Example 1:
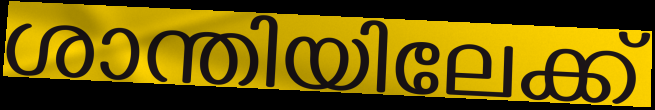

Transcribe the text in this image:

ശാന്തിയിലേക്ക്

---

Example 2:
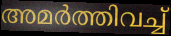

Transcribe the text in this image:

അമർത്തിവച്ച്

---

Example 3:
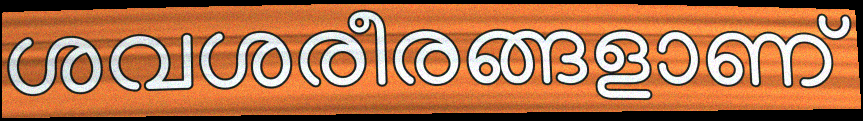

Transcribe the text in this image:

ശവശരീരങ്ങളാണ്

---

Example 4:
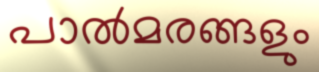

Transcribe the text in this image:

പാൽമരങ്ങളും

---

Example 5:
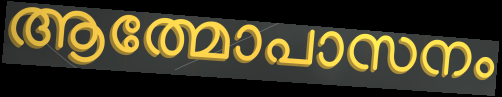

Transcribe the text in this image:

ആത്മോപാസനം